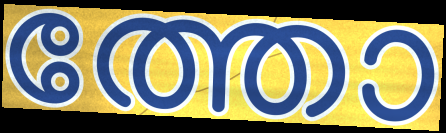
ത്തോ